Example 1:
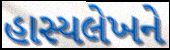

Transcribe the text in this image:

હાસ્યલેખને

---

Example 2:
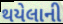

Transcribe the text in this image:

થયેલાની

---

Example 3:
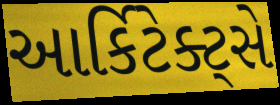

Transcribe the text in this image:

આર્કિટેક્ટ્સે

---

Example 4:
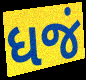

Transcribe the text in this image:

ધજં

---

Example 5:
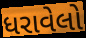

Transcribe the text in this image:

ધરાવેલો